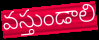
వస్తుండాలి